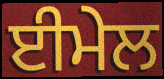
ਈਮੇਲ